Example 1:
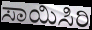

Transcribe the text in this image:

ಸಾಯಿಸಿರಿ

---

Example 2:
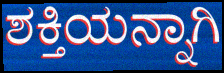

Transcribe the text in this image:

ಶಕ್ತಿಯನ್ನಾಗಿ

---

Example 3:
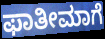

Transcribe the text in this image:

ಫಾತೀಮಾಗೆ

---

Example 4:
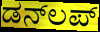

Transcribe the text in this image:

ಡನ್‌ಲಪ್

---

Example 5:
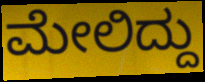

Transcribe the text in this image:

ಮೇಲಿದ್ದು